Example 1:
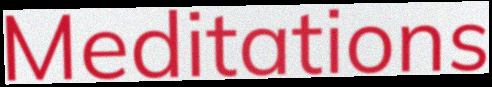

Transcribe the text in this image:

Meditations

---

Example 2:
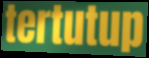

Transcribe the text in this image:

tertutup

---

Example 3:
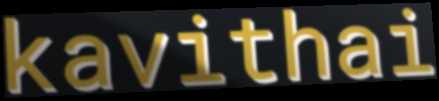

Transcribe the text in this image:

kavithai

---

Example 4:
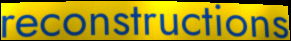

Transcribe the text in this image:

reconstructions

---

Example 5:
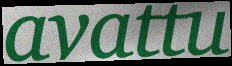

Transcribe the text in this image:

avattu